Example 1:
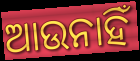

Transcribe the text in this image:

ଆଉନାହିଁ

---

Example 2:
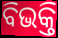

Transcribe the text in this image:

ବିଭକ୍ତି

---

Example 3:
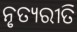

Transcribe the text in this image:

ନୃତ୍ୟରୀତି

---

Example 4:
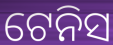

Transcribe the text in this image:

ଟେନିସ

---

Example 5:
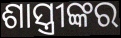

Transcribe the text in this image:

ଶାସ୍ତ୍ରୀଙ୍କର